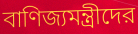
বাণিজ্যমন্ত্রীদের